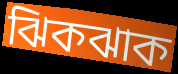
ঝিকঝাক